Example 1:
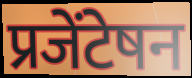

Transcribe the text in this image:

प्रजेंटेषन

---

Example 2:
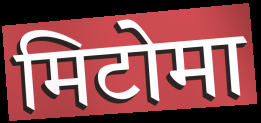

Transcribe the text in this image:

मिटोमा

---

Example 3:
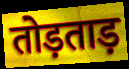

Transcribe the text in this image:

तोड़ताड़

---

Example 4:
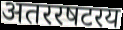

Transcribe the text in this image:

अतररषटरय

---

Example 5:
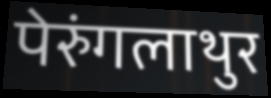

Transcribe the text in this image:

पेरुंगलाथुर